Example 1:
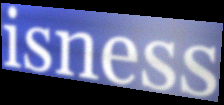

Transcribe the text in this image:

isness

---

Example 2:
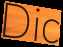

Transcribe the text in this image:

Dic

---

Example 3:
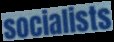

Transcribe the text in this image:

socialists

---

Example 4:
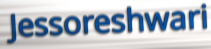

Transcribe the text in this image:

Jessoreshwari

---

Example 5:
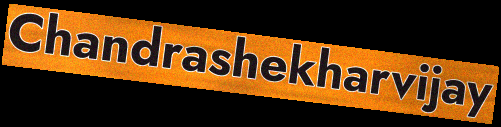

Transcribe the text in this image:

Chandrashekharvijay